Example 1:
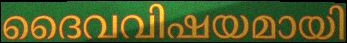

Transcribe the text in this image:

ദൈവവിഷയമായി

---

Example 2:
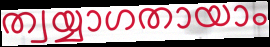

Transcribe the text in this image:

ത്വയ്യാഗതായാം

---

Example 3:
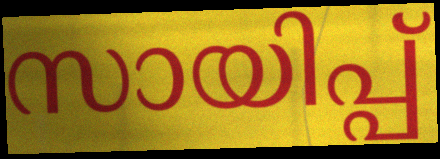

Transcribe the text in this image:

സായിപ്പ്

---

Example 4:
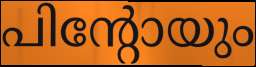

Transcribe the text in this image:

പിന്റോയും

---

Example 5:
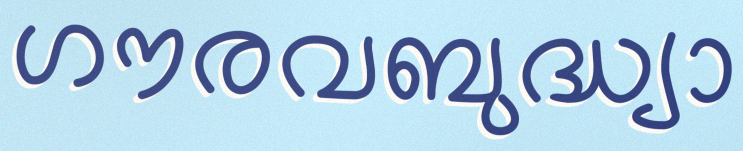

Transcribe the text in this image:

ഗൗരവബുദ്ധ്യാ